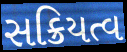
સક્રિયત્વ